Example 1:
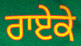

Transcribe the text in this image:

ਰਾਏਕੇ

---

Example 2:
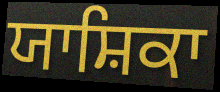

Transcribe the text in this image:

ਯਾਸ਼ਿਕਾ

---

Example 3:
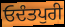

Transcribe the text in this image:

ਓਦੰਤਪੁਰੀ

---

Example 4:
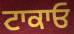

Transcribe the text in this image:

ਟਾਕਾਓ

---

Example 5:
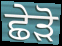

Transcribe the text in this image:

ਛੇੜੋ